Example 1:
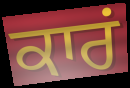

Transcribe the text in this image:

ਕਾਰਂ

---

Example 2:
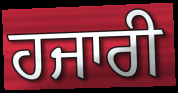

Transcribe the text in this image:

ਹਜਾਰੀ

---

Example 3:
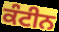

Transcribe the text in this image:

ਕੰਟੀਨ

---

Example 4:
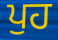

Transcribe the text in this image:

ਪੁਹ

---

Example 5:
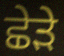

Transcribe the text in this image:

ਛੇੜੇ